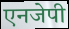
एनजेपी